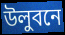
উলুবনে